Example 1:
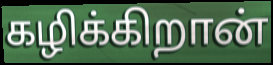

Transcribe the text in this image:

கழிக்கிறான்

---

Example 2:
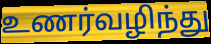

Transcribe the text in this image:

உணர்வழிந்து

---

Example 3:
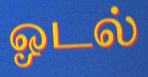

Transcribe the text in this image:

ஓடல்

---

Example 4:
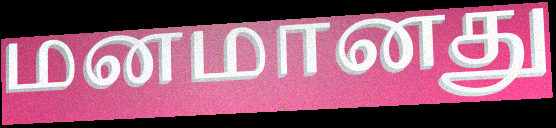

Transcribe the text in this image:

மனமானது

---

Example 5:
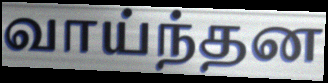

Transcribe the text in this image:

வாய்ந்தன